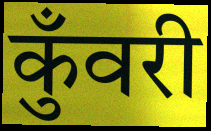
कुँवरी